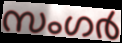
സംഗർ